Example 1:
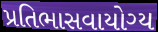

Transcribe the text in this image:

પ્રતિભાસવાયોગ્ય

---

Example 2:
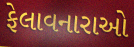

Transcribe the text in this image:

ફેલાવનારાઓ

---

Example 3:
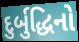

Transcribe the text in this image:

દુર્બુદ્ધિનો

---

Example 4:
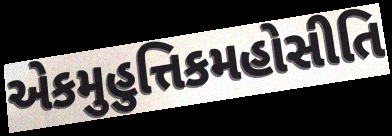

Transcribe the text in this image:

એકમુહુત્તિકમહોસીતિ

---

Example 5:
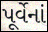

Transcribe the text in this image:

પૂર્વેનાં